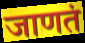
जाणतं